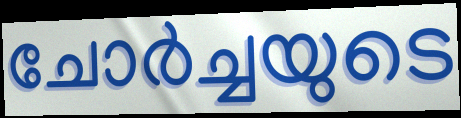
ചോർച്ചയുടെ